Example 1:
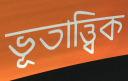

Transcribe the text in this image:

ভূতাত্ত্বিক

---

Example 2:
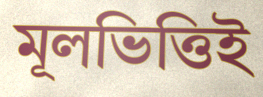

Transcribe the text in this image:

মূলভিত্তিই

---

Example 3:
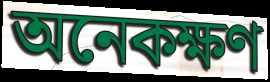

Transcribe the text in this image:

অনেকক্ষণ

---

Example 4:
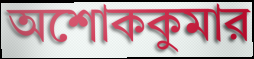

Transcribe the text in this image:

অশোককুমার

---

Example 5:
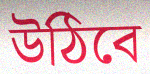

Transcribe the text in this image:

উঠিবে